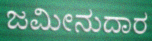
ಜಮೀನುದಾರ